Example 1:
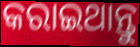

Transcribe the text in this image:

କରାଇଥାନ୍ତୁ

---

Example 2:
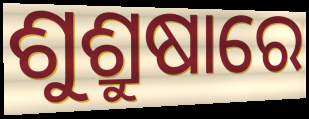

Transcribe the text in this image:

ଶୁଶ୍ରୁଷାରେ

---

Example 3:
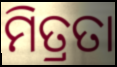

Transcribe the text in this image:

ମିତ୍ରତା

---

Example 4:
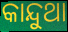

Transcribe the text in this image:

କାନ୍ଦୁଥା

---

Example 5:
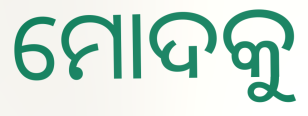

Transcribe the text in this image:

ମୋଦକୁ